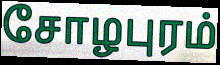
சோழபுரம்